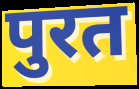
पुरत